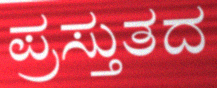
ಪ್ರಸ್ತುತದ